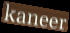
kaneer